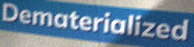
Dematerialized